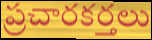
ప్రచారకర్తలు